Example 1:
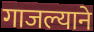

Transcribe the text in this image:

गाजल्याने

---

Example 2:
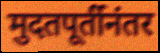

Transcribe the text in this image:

मुदतपूर्तीनंतर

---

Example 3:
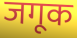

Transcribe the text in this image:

जगूक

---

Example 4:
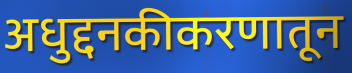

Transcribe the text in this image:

अधुद्दनकीकरणातून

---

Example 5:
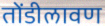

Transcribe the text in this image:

तोंडीलावण